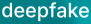
deepfake